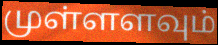
முள்ளளவும்